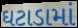
ઘટાડામાં